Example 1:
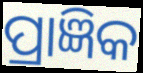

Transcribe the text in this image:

ପ୍ରାଜ୍ଞିକ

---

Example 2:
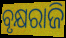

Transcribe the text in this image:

ବୃକ୍ଷରାଜି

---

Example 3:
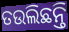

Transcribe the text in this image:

ତଉଲିଛନ୍ତି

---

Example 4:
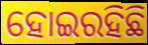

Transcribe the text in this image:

ହୋଇରହିଛି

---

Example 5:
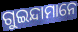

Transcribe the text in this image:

ଗୁଇନ୍ଦାମାନେ